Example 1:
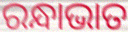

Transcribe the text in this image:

ରନ୍ଧାଭାତ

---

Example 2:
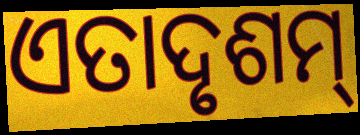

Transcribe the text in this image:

ଏତାଦୃଶମ୍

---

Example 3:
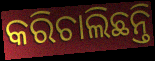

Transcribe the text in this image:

କରିଚାଲିଛନ୍ତି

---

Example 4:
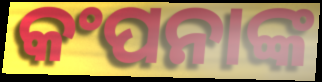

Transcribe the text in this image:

କଂପନାଙ୍କ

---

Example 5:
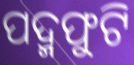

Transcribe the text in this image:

ପଦ୍ମଫୁଟି